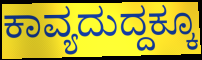
ಕಾವ್ಯದುದ್ದಕ್ಕೂ